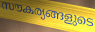
സൗകര്യങ്ങളുടെ